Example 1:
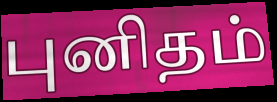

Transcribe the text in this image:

புனிதம்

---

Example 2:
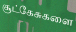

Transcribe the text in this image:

சூட்கேசுகளை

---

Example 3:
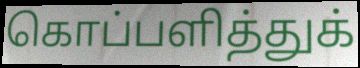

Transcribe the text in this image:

கொப்பளித்துக்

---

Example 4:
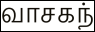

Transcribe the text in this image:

வாசகந்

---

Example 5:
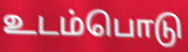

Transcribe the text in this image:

உடம்பொடு